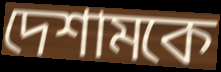
দেশামকে